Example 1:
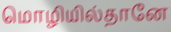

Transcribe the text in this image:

மொழியில்தானே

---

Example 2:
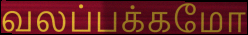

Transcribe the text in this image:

வலப்பக்கமோ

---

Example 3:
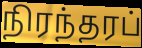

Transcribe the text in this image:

நிரந்தரப்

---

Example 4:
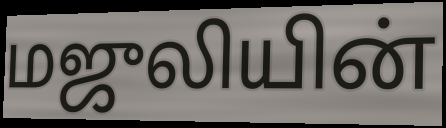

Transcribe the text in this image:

மஜுலியின்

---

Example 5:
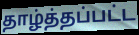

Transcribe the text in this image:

தாழ்த்தப்பட்ட